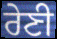
ਰੇਣੀ